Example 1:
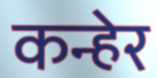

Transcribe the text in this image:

कन्हेर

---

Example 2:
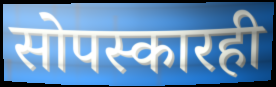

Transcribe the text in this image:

सोपस्कारही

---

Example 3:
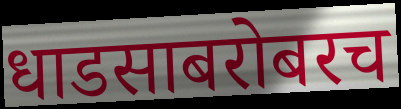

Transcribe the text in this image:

धाडसाबरोबरच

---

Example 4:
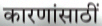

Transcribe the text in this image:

कारणांसाठीं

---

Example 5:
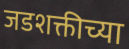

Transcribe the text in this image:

जडशक्तीच्या